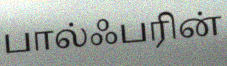
பால்ஃபரின்